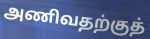
அணிவதற்குத்